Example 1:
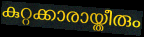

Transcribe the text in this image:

കുറ്റക്കാരായ്തീരും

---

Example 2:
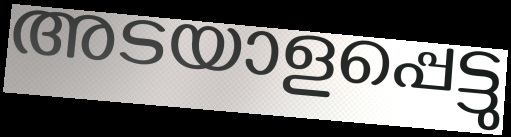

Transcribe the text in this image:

അടയാളപ്പെട്ടു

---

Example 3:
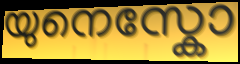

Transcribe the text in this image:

യുനെസ്കോ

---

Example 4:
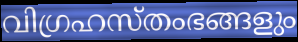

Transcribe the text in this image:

വിഗ്രഹസ്തംഭങ്ങളും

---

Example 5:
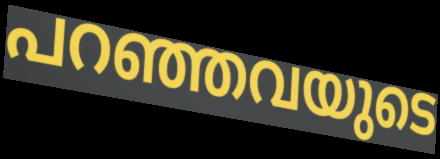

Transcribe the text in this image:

പറഞ്ഞവയുടെ